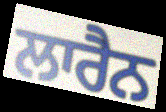
ਲਾਰੈਨ